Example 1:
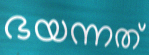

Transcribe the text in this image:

ഭയന്നത്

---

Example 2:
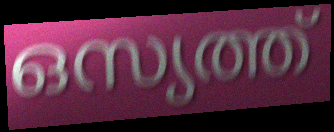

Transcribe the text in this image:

ഒസ്യത്ത്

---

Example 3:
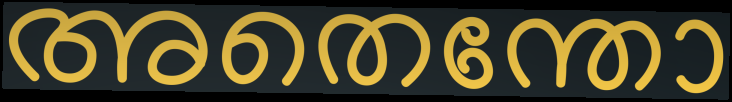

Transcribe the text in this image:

അതെന്തോ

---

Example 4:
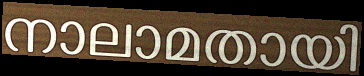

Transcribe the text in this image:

നാലാമതായി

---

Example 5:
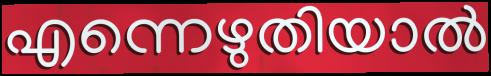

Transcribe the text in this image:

എന്നെഴുതിയാൽ